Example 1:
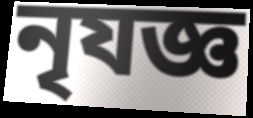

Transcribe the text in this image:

নৃযজ্ঞ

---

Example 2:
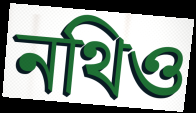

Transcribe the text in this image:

নথিও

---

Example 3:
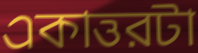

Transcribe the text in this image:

একাত্তরটা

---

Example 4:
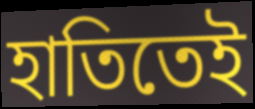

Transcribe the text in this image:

হাতিতেই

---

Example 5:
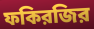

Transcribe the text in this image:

ফকিরজির